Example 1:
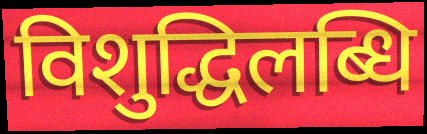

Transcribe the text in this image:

विशुद्धिलब्धि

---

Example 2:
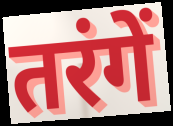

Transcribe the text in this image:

तरंगें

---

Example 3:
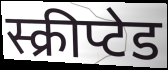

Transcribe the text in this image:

स्क्रीप्टेड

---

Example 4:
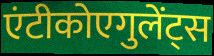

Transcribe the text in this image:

एंटीकोएगुलेंट्स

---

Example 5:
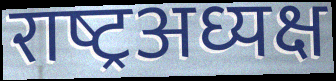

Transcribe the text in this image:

राष्ट्रअध्यक्ष